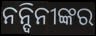
ନନ୍ଦିନୀଙ୍କର